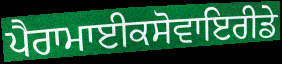
ਪੈਰਾਮਾਈਕਸੋਵਾਇਰੀਡੇ